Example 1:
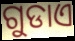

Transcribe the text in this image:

ଗୁଡାଏ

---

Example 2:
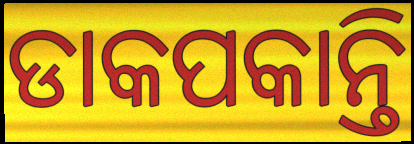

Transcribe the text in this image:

ଡାକପକାନ୍ତି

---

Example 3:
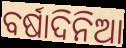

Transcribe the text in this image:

ବର୍ଷାଦିନିଆ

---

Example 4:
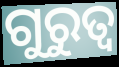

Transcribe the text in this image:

ଗୁରୁତ୍ୱ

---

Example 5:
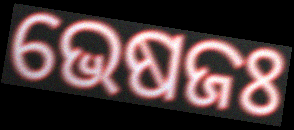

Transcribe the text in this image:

ଭେଷଜଃ